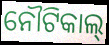
ନୌଟିକାଲ୍